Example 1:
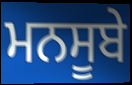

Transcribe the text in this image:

ਮਨਸੂਬੇ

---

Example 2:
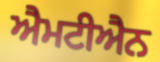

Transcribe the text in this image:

ਐਮਟੀਐਨ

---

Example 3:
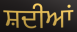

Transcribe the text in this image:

ਸ਼ਦੀਆਂ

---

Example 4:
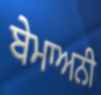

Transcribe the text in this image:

ਬੇਮਾਅਨੀ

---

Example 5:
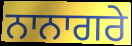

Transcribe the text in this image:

ਨਾਨਾਗਰੇ